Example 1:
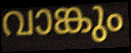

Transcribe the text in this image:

വാങ്കും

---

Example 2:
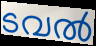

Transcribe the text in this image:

ടവൽ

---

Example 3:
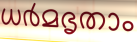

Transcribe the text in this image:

ധർമഭൃതാം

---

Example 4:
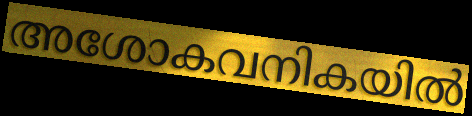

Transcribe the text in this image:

അശോകവനികയിൽ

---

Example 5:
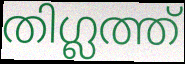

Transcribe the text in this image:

തിഗ്ലത്ത്